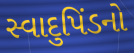
સ્વાદુપિંડનો